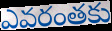
ఎవరంతకు